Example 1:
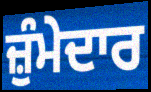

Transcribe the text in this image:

ਜ਼ੁੰਮੇਦਾਰ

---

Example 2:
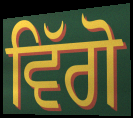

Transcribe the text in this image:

ਵਿੱਗੋ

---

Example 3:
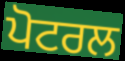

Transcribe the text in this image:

ਪੋਟਰਲ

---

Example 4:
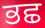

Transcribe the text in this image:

ਭਛ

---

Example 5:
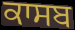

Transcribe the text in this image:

ਕਾਸਬ